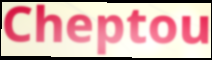
Cheptou